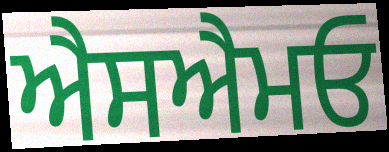
ਐਸਐਮਓ